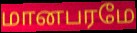
மானபரமே